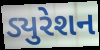
ડ્યુરેશન